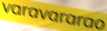
varavararao